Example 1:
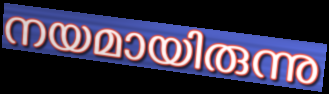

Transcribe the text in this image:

നയമായിരുന്നു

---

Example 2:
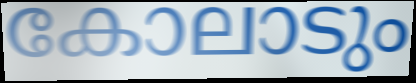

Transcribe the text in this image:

കോലാടും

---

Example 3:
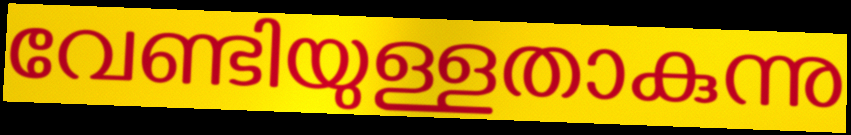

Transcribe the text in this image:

വേണ്ടിയുള്ളതാകുന്നു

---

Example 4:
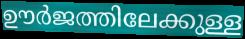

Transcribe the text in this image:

ഊർജത്തിലേക്കുള്ള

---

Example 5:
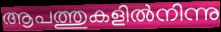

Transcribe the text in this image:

ആപത്തുകളിൽനിന്നു